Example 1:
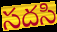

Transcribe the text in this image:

సదసి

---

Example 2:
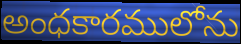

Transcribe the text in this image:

అంధకారములోను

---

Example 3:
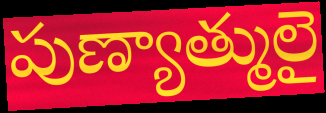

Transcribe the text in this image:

పుణ్యాత్ములై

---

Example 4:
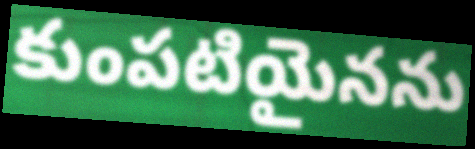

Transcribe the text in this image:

కుంపటియైనను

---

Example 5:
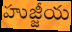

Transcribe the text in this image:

హుజ్జీయ